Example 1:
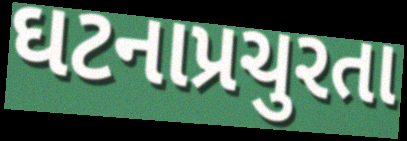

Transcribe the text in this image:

ઘટનાપ્રચુરતા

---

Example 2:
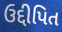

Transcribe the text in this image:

ઉદ્દીપિત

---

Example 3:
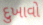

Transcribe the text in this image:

દુખાવો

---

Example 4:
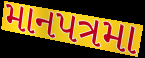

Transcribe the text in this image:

માનપત્રમા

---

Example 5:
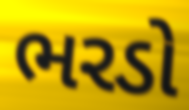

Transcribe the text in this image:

ભરડો